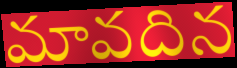
మావదిన